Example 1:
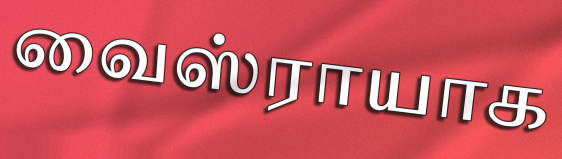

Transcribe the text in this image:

வைஸ்ராயாக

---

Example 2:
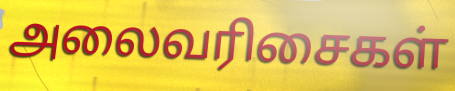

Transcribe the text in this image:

அலைவரிசைகள்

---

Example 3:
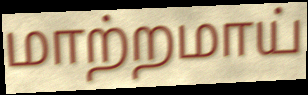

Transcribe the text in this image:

மாற்றமாய்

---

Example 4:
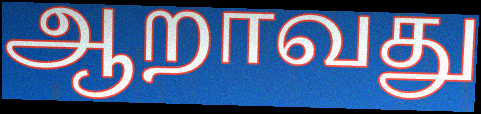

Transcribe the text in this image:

ஆறாவது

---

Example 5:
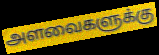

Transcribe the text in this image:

அளவைகளுக்கு